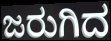
ಜರುಗಿದ